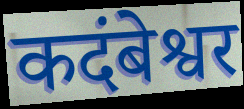
कदंबेश्वर